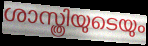
ശാസ്ത്രിയുടെയും